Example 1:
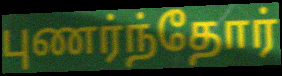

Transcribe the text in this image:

புணர்ந்தோர்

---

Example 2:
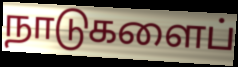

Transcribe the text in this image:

நாடுகளைப்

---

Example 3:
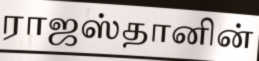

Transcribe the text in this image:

ராஜஸ்தானின்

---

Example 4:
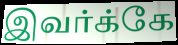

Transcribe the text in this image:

இவர்க்கே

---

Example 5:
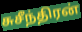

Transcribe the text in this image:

சுசீந்திரன்